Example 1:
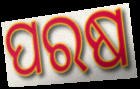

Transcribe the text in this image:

ପରଷ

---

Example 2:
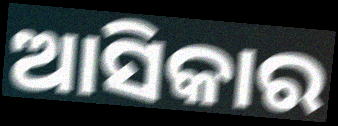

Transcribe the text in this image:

ଆସିକାର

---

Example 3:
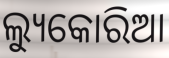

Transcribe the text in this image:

ଲ୍ୟୁକୋରିଆ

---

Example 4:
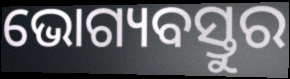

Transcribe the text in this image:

ଭୋଗ୍ୟବସ୍ତୁର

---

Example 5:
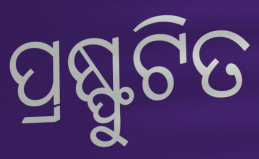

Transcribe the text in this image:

ପ୍ରଷ୍ଫୁଟିତ